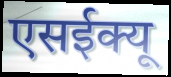
एसईक्यू